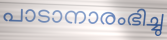
പാടാനാരംഭിച്ചു